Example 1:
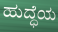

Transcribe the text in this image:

ಹುದ್ಧೆಯ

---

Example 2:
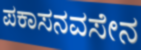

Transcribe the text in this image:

ಪಕಾಸನವಸೇನ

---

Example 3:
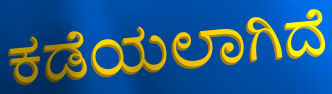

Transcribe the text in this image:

ಕಡೆಯಲಾಗಿದೆ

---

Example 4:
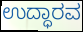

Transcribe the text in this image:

ಉದ್ಧಾರವ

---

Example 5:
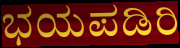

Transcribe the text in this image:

ಭಯಪಡಿರಿ